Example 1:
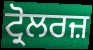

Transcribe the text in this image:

ਟ੍ਰੋਲਰਜ਼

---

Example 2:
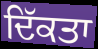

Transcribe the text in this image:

ਦਿੱਕਤਾ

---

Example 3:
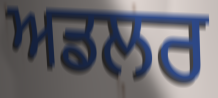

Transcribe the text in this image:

ਅਡਲਰ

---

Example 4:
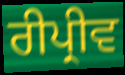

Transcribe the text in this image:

ਰੀਪ੍ਰੀਵ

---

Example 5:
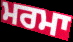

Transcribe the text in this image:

ਮਰਮਾ